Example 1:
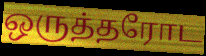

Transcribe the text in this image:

ஒருத்தரோட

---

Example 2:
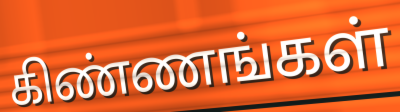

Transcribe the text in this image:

கிண்ணங்கள்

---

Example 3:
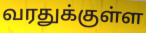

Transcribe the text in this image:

வரதுக்குள்ள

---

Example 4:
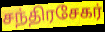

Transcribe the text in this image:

சந்திரசேகர்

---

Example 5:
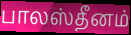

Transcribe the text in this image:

பாலஸ்தீனம்